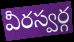
వీరస్వర్గ